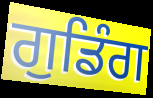
ਗੁਡਿੰਗ